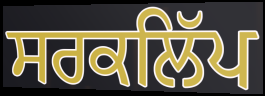
ਸਰਕਲਿੱਪ